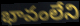
భావంలేని